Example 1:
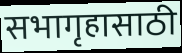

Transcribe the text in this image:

सभागृहासाठी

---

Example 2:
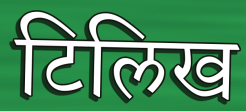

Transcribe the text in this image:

टिलिख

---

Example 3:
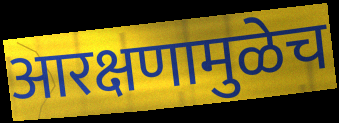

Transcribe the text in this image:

आरक्षणामुळेच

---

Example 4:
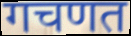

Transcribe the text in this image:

गचणत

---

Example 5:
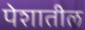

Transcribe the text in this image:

पेशातील